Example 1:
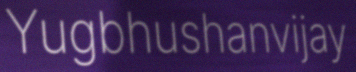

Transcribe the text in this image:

Yugbhushanvijay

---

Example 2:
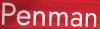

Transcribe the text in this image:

Penman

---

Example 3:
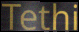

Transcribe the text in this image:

Tethi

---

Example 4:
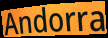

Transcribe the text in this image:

Andorra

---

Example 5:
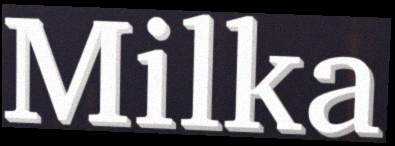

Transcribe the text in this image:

Milka